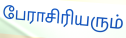
பேராசிரியரும்